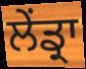
ਲੇਂਡ੍ਰਾ